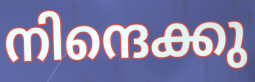
നിന്ദെക്കു